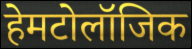
हेमटोलॉजिक